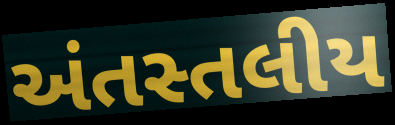
અંતસ્તલીય